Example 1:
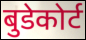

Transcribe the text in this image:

बुडेकोर्ट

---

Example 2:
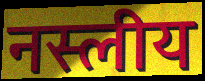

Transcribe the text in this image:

नस्लीय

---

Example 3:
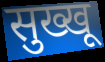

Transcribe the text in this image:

सुख्खू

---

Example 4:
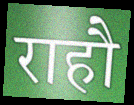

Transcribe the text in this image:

राहौ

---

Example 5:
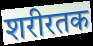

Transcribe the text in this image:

शरीरतक